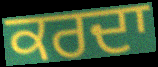
ਕਰਦਾ